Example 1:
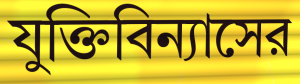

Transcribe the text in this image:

যুক্তিবিন্যাসের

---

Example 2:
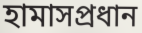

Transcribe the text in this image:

হামাসপ্রধান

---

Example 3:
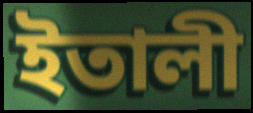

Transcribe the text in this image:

ইতালী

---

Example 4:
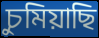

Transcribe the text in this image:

চুমিয়াছি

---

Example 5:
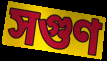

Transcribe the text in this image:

সগুণ